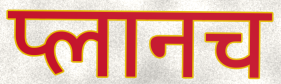
प्लानच